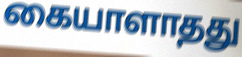
கையாளாதது